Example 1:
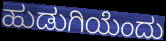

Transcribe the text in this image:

ಹುಡುಗಿಯೆಂದು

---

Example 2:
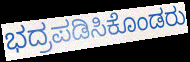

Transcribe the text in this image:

ಭದ್ರಪಡಿಸಿಕೊಂಡರು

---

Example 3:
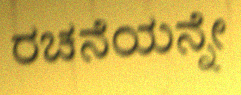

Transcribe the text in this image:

ರಚನೆಯನ್ನೇ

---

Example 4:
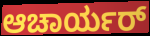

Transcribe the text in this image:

ಆಚಾರ್ಯರ್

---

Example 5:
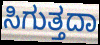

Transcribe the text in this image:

ಸಿಗುತ್ತದಾ